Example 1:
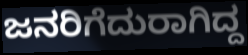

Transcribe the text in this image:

ಜನರಿಗೆದುರಾಗಿದ್ದ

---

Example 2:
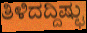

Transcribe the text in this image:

ತಿಳಿದದ್ದಿಷ್ಟು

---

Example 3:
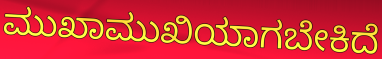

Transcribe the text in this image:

ಮುಖಾಮುಖಿಯಾಗಬೇಕಿದೆ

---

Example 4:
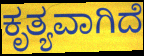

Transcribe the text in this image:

ಕೃತ್ಯವಾಗಿದೆ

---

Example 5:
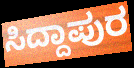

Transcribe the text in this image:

ಸಿದ್ದಾಪುರ